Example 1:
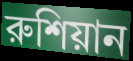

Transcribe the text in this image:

রুশিয়ান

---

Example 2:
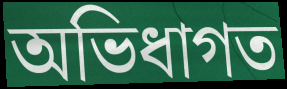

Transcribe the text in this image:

অভিধাগত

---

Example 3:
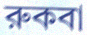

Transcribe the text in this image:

রুকবা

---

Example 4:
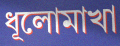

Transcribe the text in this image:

ধূলোমাখা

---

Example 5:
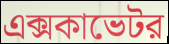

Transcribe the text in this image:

এক্সকাভেটর